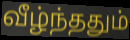
வீழ்ந்ததும்